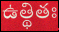
ఉత్థితః